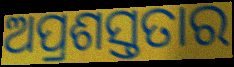
ଅପ୍ରଶସ୍ତତାର